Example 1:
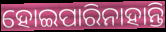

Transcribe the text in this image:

ହୋଇପାରିନାହାନ୍ତି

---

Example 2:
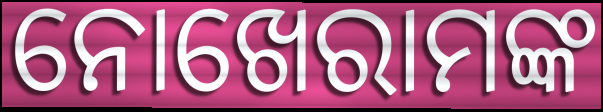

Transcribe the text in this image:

ନୋଖେରାମଙ୍କ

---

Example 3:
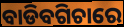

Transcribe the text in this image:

ବାଡିବଗିଚାରେ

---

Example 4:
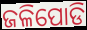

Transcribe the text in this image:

ଜଳିପୋଡି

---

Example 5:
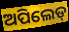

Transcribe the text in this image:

ଅପିଲେଡ୍